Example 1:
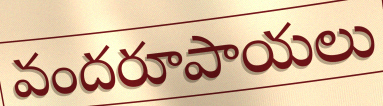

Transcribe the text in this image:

వందరూపాయలు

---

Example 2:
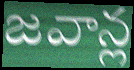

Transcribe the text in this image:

జవాన్ల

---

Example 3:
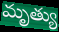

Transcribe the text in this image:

మృత్యు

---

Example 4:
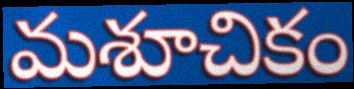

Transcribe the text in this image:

మశూచికం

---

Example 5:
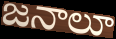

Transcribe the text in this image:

జనాలూ